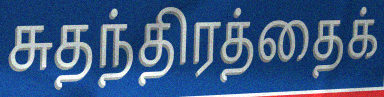
சுதந்திரத்தைக்